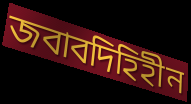
জবাবদিহিহীন